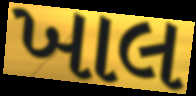
ખાલ